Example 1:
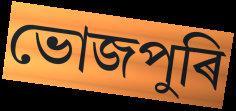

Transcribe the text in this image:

ভোজপুৰি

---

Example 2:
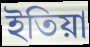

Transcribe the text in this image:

ইতিয়া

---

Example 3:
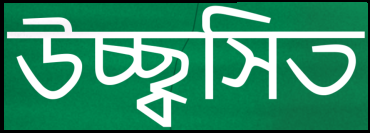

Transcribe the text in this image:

উচ্ছ্বসিত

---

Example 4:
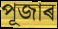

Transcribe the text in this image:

পূজাৰ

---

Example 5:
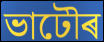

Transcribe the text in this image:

ভাটৌৰ